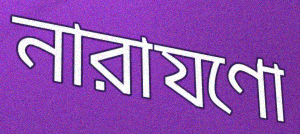
নারাযণো